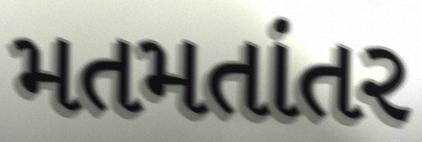
મતમતાંતર